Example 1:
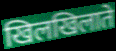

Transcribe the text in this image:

खिलखिलाते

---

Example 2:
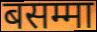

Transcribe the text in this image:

बसम्मा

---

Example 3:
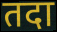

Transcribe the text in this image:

तदा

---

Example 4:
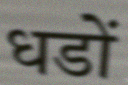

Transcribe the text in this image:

धडों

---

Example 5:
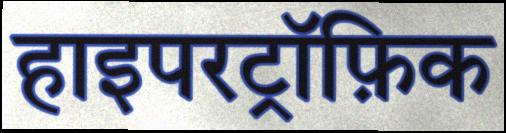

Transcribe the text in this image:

हाइपरट्रॉफ़िक